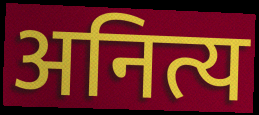
अनित्य